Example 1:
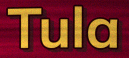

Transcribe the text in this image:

Tula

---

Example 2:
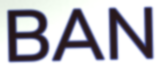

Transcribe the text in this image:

BAN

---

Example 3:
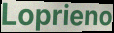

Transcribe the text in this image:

Loprieno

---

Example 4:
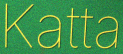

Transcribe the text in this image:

Katta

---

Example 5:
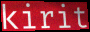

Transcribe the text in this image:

kirit